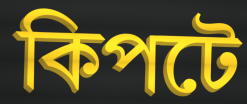
কিপটে